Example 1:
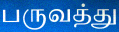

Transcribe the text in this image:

பருவத்து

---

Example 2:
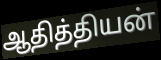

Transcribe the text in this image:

ஆதித்தியன்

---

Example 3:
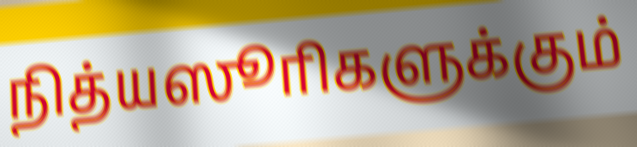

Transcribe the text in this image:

நித்யஸூரிகளுக்கும்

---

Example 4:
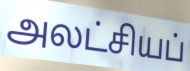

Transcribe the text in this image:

அலட்சியப்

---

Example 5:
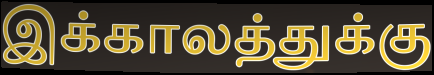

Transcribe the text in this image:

இக்காலத்துக்கு